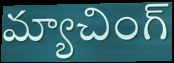
మ్యాచింగ్